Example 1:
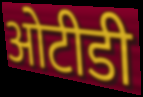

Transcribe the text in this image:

ओटीडी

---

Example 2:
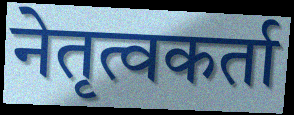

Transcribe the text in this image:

नेतृत्‍वकर्ता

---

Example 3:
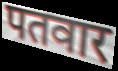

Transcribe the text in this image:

पतवार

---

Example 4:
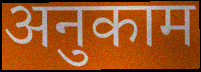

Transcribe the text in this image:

अनुकाम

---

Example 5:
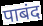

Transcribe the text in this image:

पाबंद